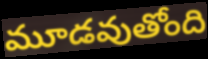
మూడవుతోంది